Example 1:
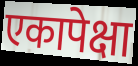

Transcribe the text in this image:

एकापेक्षा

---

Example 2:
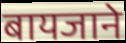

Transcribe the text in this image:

बायजाने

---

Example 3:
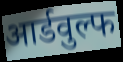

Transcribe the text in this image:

आर्डवुल्फ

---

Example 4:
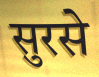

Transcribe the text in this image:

सुरसे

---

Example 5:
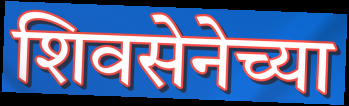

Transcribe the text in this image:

शिवसेनेच्या